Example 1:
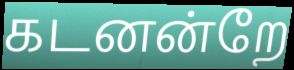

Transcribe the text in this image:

கடனன்றே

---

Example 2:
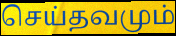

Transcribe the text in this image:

செய்தவமும்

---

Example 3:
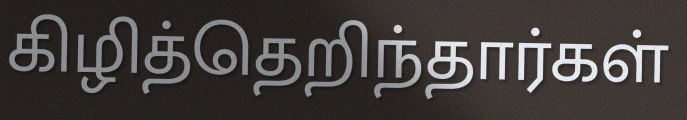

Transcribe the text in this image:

கிழித்தெறிந்தார்கள்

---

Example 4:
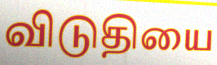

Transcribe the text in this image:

விடுதியை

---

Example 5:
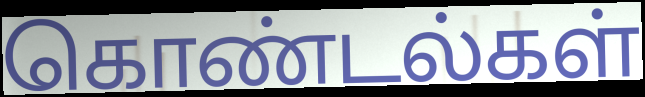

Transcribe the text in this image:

கொண்டல்கள்